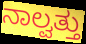
ನಾಲ್ವತ್ತು